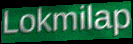
Lokmilap